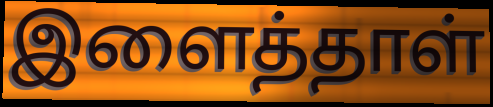
இளைத்தாள்